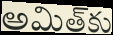
అమిత్‌కు